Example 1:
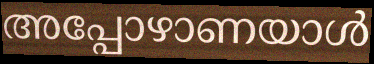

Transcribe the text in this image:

അപ്പോഴാണയാൾ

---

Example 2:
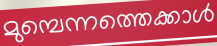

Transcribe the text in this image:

മുമ്പെന്നത്തെക്കാൾ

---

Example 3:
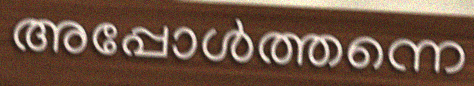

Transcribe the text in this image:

അപ്പോൾത്തന്നെ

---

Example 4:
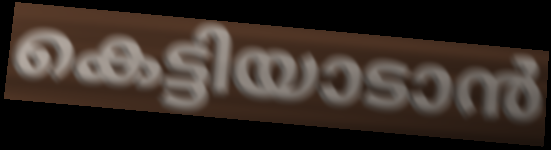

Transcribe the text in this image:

കെട്ടിയാടാൻ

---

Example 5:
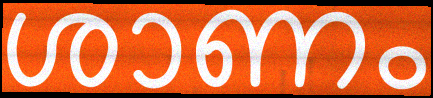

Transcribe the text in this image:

ശാണം